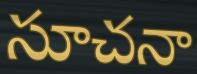
సూచనా